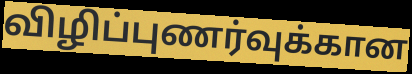
விழிப்புணர்வுக்கான